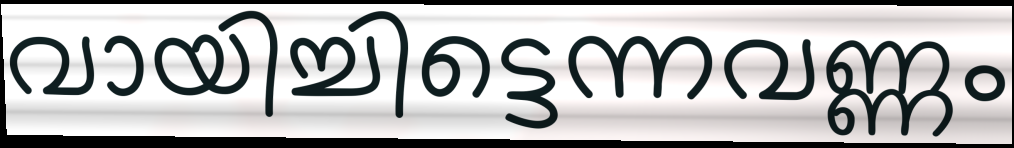
വായിച്ചിട്ടെന്നവണ്ണം